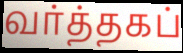
வர்த்தகப்